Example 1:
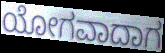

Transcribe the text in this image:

ಯೋಗವಾದಾಗ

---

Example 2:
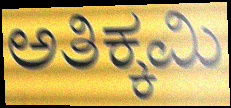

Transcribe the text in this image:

ಅತಿಕ್ಕಮಿ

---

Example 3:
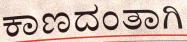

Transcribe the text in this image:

ಕಾಣದಂತಾಗಿ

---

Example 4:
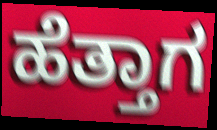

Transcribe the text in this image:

ಹೆತ್ತಾಗ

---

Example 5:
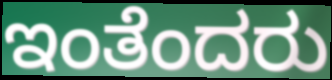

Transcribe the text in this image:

ಇಂತೆಂದರು